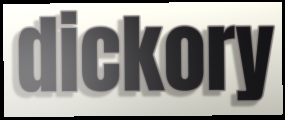
dickory